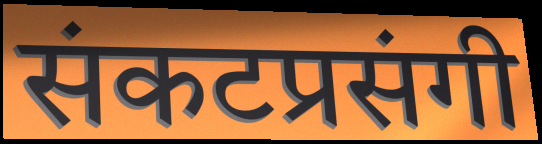
संकटप्रसंगी